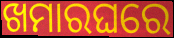
ଖମାରଘରେ